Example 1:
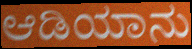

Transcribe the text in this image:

ಆಡಿಯಾನು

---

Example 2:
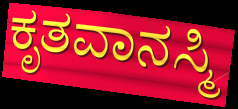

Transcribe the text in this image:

ಕೃತವಾನಸ್ಮಿ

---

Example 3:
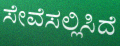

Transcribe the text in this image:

ಸೇವೆಸಲ್ಲಿಸಿದೆ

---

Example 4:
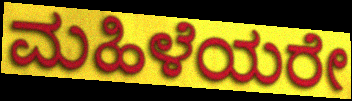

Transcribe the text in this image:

ಮಹಿಳೆಯರೇ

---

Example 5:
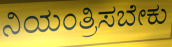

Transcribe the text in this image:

ನಿಯಂತ್ರಿಸಬೇಕು